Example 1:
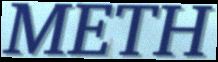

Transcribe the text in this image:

METH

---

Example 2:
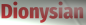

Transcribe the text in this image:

Dionysian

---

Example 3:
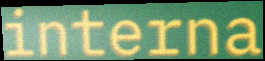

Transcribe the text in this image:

interna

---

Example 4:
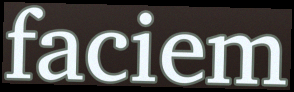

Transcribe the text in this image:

faciem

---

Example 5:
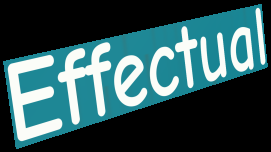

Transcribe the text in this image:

Effectual